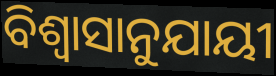
ବିଶ୍ୱାସାନୁଯାୟୀ